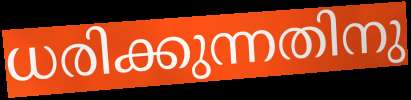
ധരിക്കുന്നതിനു